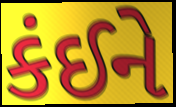
કંઈને